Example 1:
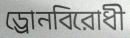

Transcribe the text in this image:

ড্রোনবিরোধী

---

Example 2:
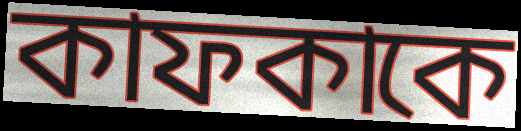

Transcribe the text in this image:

কাফকাকে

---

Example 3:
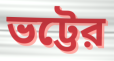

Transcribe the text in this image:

ভট্টের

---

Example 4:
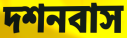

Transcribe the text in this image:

দশনবাস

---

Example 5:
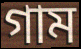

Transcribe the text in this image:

গাম